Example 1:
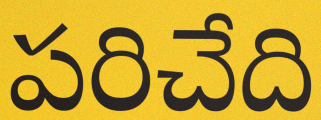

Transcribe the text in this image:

పరిచేది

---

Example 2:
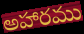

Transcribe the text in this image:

అహారము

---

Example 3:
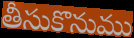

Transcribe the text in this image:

తీసుకొనుము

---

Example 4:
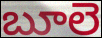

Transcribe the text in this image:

బూలె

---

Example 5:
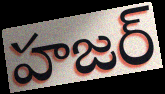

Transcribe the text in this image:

హజర్